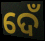
ଦେଁ